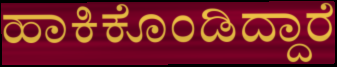
ಹಾಕಿಕೊಂಡಿದ್ದಾರೆ